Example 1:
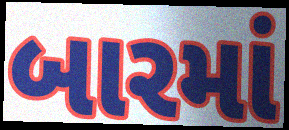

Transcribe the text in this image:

બારમાં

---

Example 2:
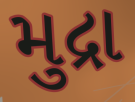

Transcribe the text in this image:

મુદ્રા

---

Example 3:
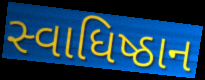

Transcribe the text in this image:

સ્વાધિષ્ઠાન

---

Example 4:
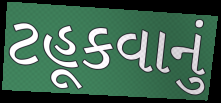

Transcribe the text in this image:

ટહૂકવાનું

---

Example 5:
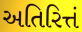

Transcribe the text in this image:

અતિરિત્તં